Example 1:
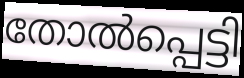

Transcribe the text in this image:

തോൽപ്പെട്ടി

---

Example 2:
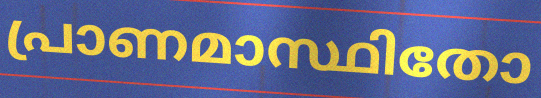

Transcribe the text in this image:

പ്രാണമാസ്ഥിതോ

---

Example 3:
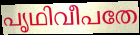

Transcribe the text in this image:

പൃഥിവീപതേ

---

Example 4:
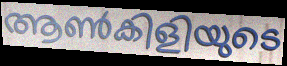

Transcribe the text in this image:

ആൺകിളിയുടെ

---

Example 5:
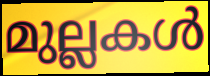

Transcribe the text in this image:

മുല്ലകൾ